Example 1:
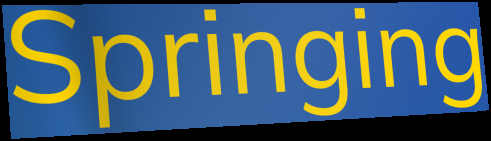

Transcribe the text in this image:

Springing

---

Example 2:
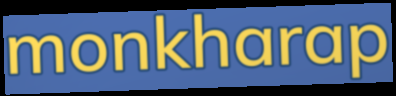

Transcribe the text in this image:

monkharap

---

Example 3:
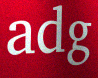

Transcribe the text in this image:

adg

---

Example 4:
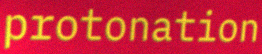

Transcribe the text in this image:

protonation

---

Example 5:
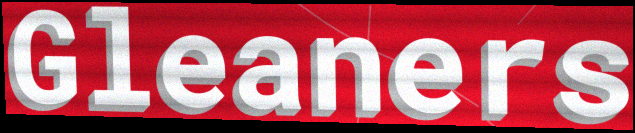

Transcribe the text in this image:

Gleaners